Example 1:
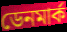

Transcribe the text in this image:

ডেনমাৰ্ক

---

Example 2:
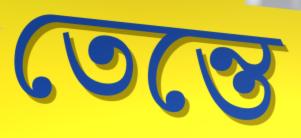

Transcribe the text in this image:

তেন্তে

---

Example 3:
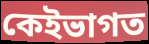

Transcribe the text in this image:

কেইভাগত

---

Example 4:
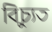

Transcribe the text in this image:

বিচ্যুত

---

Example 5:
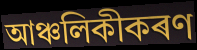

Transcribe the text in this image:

আঞ্চলিকীকৰণ